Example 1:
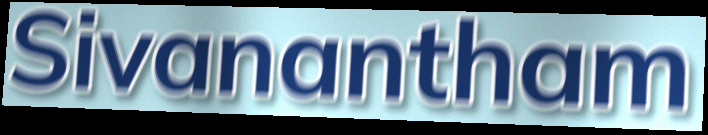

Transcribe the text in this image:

Sivanantham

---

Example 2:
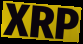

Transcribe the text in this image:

XRP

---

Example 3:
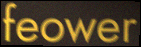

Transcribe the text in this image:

feower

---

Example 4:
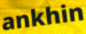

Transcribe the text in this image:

ankhin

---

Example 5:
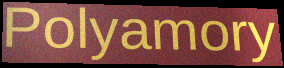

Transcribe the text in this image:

Polyamory